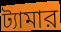
ট্যামার